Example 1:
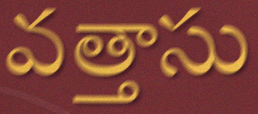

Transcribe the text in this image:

వత్తాసు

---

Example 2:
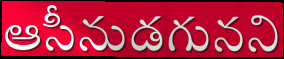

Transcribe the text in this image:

ఆసీనుడగునని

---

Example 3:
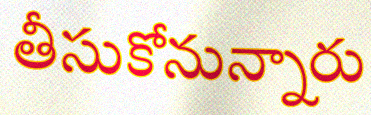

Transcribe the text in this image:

తీసుకోనున్నారు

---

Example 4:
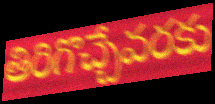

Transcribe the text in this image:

తిరిగొచ్చేవరకు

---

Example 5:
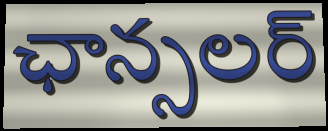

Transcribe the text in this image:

ఛాన్సలర్